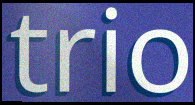
trio